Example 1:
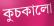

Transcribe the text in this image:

কুচকালো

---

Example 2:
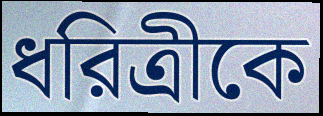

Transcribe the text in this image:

ধরিত্রীকে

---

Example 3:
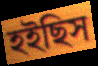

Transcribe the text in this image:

হইছিস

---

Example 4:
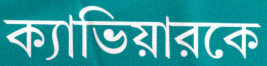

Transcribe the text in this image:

ক্যাভিয়ারকে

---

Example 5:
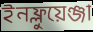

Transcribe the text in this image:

ইনফ্লুয়েঞ্জা